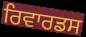
ਰਿਵਾਰਡਸ